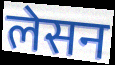
लेसन